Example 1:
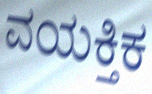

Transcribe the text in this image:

ವಯಕ್ತಿಕ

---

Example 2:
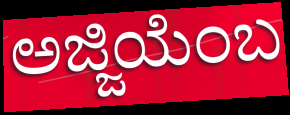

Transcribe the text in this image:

ಅಜ್ಜಿಯೆಂಬ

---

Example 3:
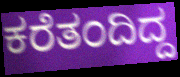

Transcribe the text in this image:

ಕರೆತಂದಿದ್ದ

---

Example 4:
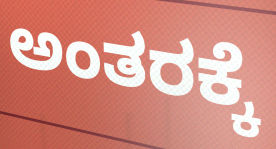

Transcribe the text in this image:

ಅಂತರಕ್ಕೆ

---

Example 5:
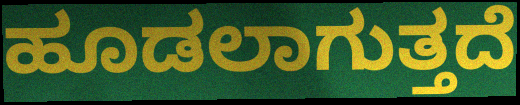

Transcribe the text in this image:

ಹೂಡಲಾಗುತ್ತದೆ